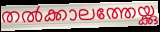
തൽക്കാലത്തേയ്ക്കു